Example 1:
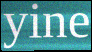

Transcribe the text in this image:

yine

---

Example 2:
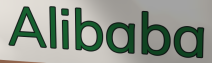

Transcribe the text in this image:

Alibaba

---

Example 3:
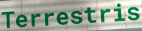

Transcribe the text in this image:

Terrestris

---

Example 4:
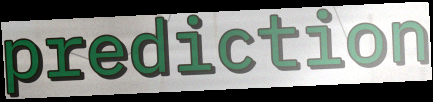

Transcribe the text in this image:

prediction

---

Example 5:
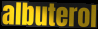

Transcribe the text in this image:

albuterol